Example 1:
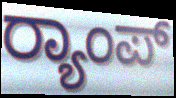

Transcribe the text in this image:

ರ‍್ಯಾಂಪ್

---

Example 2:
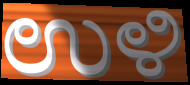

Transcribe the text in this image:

ಉಳಿ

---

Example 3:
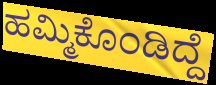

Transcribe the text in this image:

ಹಮ್ಮಿಕೊಂಡಿದ್ದೆ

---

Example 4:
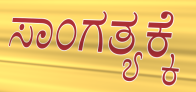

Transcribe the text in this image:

ಸಾಂಗತ್ಯಕ್ಕೆ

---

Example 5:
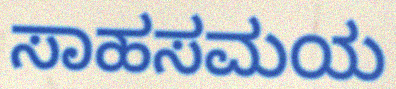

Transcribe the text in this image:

ಸಾಹಸಮಯ